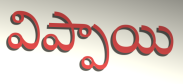
విప్పాయి